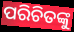
ପରିଚିତଙ୍କୁ